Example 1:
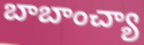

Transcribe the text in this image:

బాబాంచ్యా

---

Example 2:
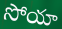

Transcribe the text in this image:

సోయా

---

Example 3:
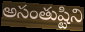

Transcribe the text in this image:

అసంతుష్టిని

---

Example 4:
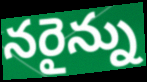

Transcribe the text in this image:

నరైన్ను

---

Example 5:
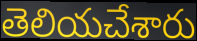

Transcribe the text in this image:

తెలియచేశారు